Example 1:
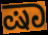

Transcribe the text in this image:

ಷಾ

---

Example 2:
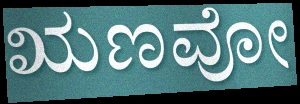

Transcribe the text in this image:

ಋಣವೋ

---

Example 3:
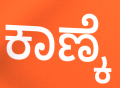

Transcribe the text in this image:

ಕಾಣ್ಕೆ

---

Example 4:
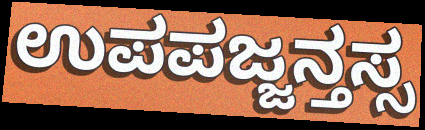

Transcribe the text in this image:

ಉಪಪಜ್ಜನ್ತಸ್ಸ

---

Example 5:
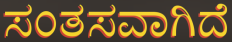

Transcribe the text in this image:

ಸಂತಸವಾಗಿದೆ